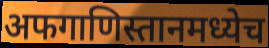
अफगाणिस्तानमध्येच